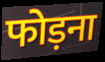
फोड़ना